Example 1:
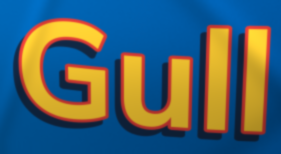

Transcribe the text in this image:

Gull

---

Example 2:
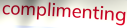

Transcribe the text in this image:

complimenting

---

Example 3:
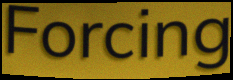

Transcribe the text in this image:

Forcing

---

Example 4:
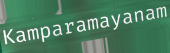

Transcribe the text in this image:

Kamparamayanam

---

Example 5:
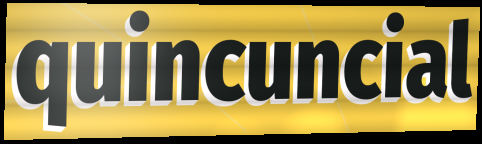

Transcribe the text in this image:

quincuncial